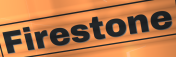
Firestone